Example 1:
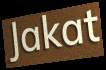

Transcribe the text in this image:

Jakat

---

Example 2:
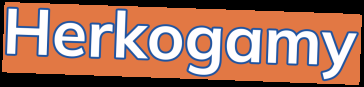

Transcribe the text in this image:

Herkogamy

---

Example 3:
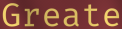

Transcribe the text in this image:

Greate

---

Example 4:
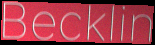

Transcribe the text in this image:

Becklin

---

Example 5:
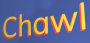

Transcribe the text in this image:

Chawl